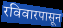
रविवारपासून